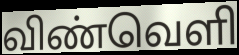
விண்வெளி